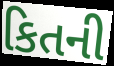
કિતની